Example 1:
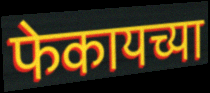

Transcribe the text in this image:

फेकायच्या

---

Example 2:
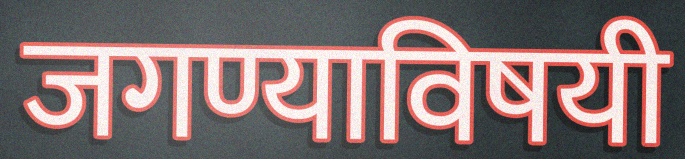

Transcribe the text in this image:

जगण्याविषयी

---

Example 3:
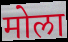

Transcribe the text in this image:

मोला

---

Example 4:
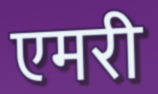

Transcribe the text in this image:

एमरी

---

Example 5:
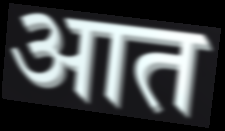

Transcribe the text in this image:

आत